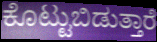
ಕೊಟ್ಟುಬಿಡುತ್ತಾರೆ